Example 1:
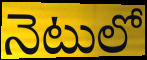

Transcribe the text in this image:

నెటులో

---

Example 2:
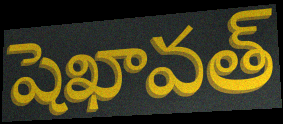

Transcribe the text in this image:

షెఖావత్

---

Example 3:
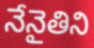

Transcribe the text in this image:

నేనైతిని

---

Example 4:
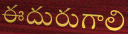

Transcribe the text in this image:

ఈదురుగాలి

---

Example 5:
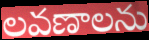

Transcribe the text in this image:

లవణాలను